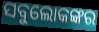
ସବୁଲୋକଙ୍କର